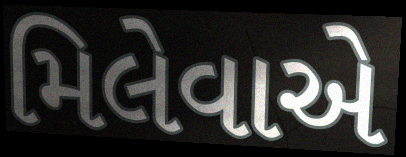
મિલેવાએ